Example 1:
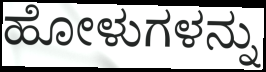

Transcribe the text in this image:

ಹೋಳುಗಳನ್ನು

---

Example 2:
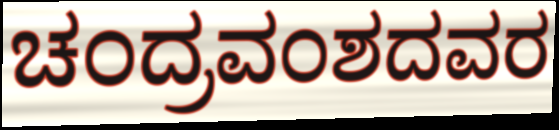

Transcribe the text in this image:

ಚಂದ್ರವಂಶದವರ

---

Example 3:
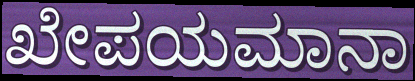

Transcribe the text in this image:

ಖೇಪಯಮಾನಾ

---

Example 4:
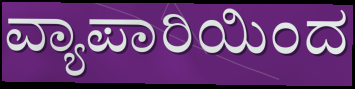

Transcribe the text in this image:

ವ್ಯಾಪಾರಿಯಿಂದ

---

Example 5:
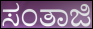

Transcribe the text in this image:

ಸಂತಾಜಿ